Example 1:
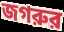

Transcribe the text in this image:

জগরুর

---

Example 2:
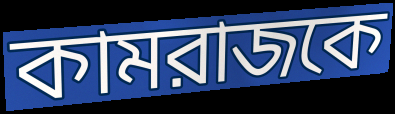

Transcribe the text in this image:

কামরাজকে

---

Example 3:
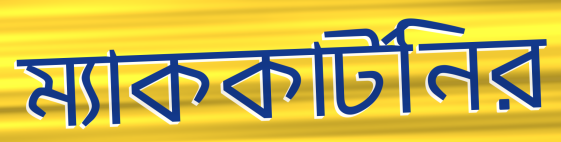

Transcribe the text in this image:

ম্যাককার্টনির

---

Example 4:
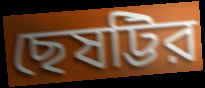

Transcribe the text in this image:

ছেষট্টির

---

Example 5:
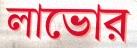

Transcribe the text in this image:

লাভোর